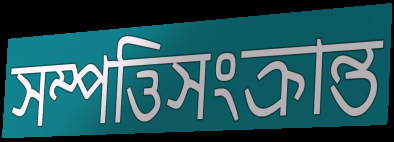
সম্পত্তিসংক্রান্ত